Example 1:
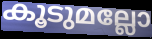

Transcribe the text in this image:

കൂടുമല്ലോ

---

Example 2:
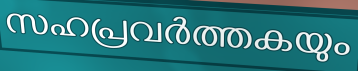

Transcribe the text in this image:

സഹപ്രവർത്തകയും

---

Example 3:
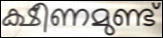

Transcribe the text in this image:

ക്ഷീണമുണ്ട്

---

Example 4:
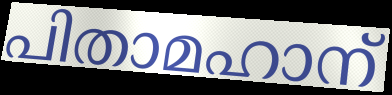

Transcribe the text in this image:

പിതാമഹാന്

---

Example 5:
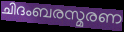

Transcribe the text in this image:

ചിദംബരസ്മരണ